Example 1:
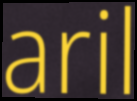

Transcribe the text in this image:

aril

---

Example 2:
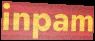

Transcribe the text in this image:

inpam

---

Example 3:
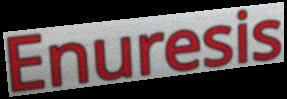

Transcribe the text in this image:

Enuresis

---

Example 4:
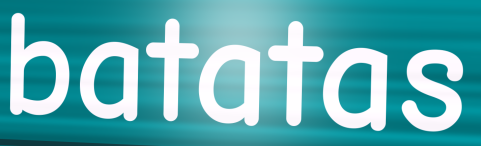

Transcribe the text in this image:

batatas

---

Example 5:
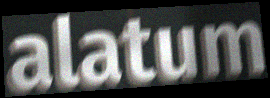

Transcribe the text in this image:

alatum